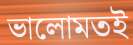
ভালোমতই